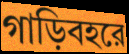
গাড়িবহরে